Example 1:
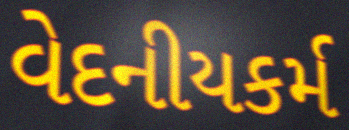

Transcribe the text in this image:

વેદનીયકર્મ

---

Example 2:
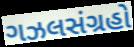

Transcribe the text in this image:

ગઝલસંગ્રહો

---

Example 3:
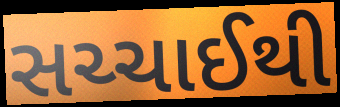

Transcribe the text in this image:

સચ્ચાઈથી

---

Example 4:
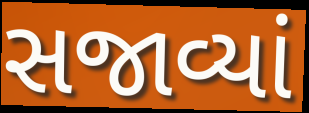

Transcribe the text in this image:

સજાવ્યાં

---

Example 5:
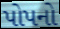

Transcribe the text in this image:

પોપનો